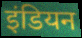
इंडियन